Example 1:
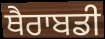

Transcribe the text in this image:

ਥੈਰਾਬਡੀ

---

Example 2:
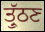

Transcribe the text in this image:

ਤ੍ਰੁੱਠਣ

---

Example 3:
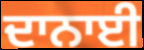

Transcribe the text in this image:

ਦਾਨਾਈ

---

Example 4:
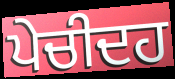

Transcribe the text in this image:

ਪੇਚੀਦਹ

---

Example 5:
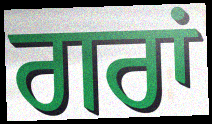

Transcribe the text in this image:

ਗਰਾਂ